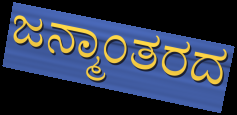
ಜನ್ಮಾಂತರದ